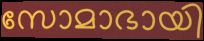
സോമാഭായി